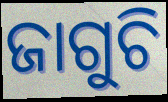
ଜାଗୁଚି